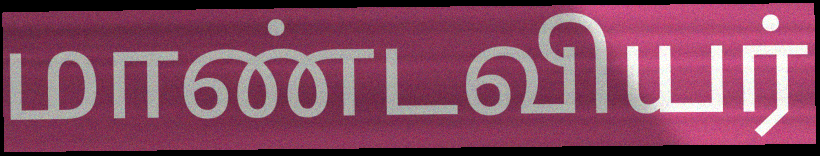
மாண்டவியர்